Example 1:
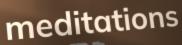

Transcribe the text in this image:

meditations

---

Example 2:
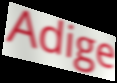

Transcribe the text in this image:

Adige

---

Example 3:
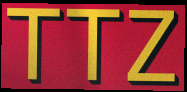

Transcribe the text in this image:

TTZ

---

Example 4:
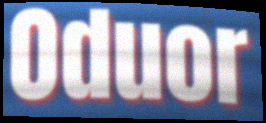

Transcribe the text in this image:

Oduor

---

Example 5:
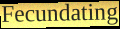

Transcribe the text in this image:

Fecundating